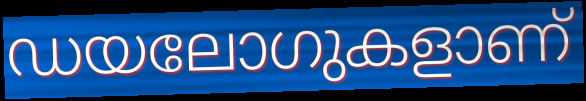
ഡയലോഗുകളാണ്